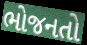
ભોજનતો